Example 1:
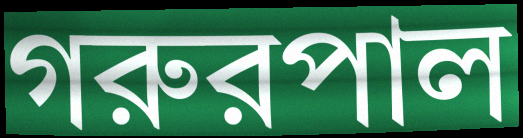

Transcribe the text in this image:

গরুরপাল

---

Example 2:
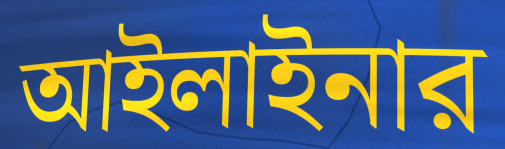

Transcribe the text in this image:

আইলাইনার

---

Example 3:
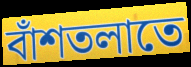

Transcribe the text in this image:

বাঁশতলাতে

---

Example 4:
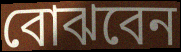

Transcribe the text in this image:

বোঝবেন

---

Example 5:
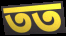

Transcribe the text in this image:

তত